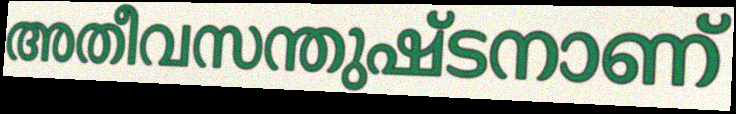
അതീവസന്തുഷ്ടനാണ്